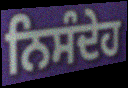
ਨਿਸੰਦੇਹ